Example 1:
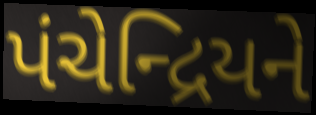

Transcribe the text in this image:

પંચેન્દ્રિયને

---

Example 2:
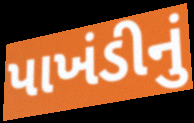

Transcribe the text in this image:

પાખંડીનું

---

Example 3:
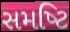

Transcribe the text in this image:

સમષ્‍ટિ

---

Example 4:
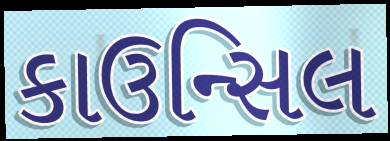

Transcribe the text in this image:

કાઉન્‍સિલ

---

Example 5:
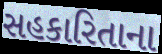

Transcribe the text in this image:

સહકારિતાના